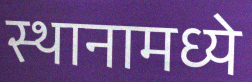
स्थानामध्ये